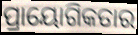
ପ୍ରାୟୋଗିକତାର